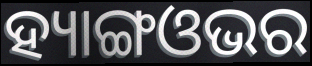
ହ୍ୟାଙ୍ଗଓଭର